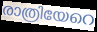
രാത്രിയേറെ